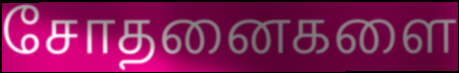
சோதனைகளை